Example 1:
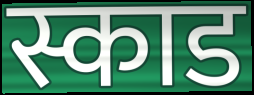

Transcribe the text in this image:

स्काड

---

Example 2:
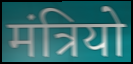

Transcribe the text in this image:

मंत्रियो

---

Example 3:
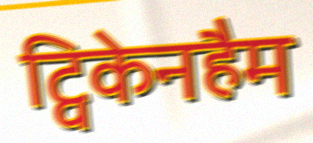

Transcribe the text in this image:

ट्विकेनहैम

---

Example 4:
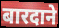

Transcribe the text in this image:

बारदाने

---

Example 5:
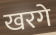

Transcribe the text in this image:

खरगे